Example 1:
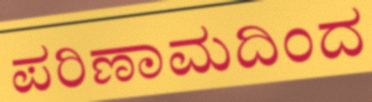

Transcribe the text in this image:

ಪರಿಣಾಮದಿಂದ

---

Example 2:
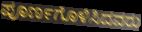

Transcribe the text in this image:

ಪೂರ್ಣಗೊಳಿಸಿದವರು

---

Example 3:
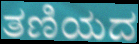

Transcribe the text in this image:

ತಣಿಯದ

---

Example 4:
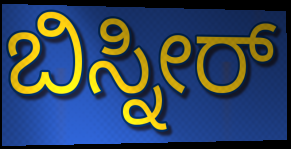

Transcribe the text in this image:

ಬಿಸ್ನೀರ್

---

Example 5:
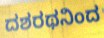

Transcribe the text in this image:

ದಶರಥನಿಂದ